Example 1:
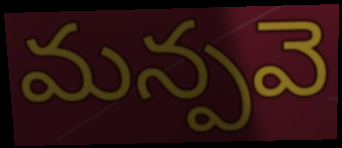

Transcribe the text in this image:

మన్పవె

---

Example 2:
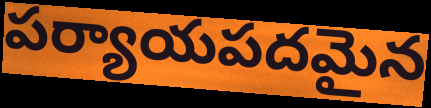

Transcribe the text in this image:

పర్యాయపదమైన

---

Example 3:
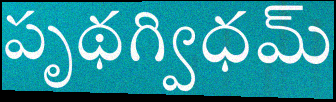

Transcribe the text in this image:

పృథగ్విధమ్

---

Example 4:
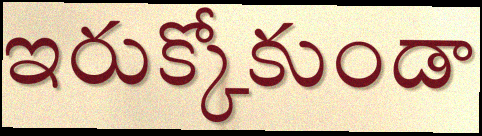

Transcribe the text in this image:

ఇరుక్కోకుండా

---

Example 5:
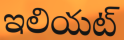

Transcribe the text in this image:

ఇలియట్